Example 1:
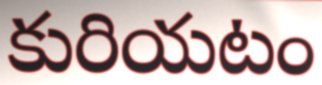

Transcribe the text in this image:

కురియటం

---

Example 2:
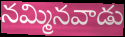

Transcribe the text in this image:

నమ్మినవాడు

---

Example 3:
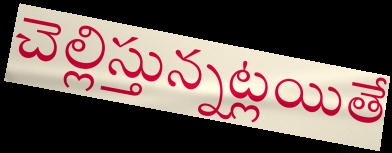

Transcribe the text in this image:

చెల్లిస్తున్నట్లయితే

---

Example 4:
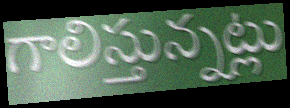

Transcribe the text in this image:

గాలిస్తున్నట్లు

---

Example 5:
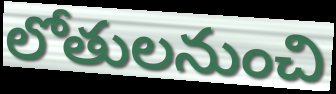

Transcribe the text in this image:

లోతులనుంచి